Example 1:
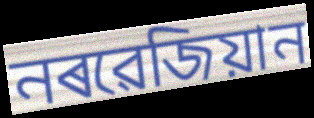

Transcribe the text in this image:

নৰৱেজিয়ান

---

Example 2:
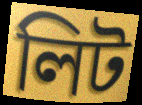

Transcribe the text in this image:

লিট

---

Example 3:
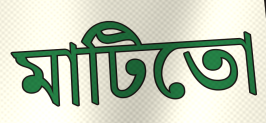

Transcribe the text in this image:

মাটিতো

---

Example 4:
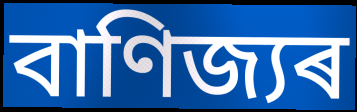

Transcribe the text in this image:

বাণিজ্যৰ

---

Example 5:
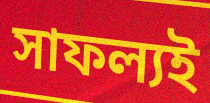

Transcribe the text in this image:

সাফল্যই